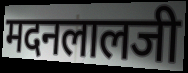
मदनलालजी